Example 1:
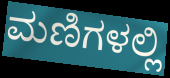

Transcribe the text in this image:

ಮಣಿಗಳಲ್ಲಿ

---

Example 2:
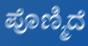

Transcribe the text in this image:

ಪೊಣ್ಮಿದೆ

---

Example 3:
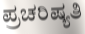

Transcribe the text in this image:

ಪ್ರಚರಿಷ್ಯತಿ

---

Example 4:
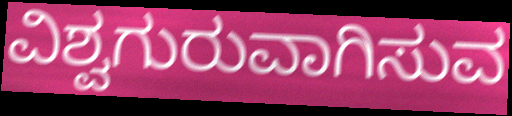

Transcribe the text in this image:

ವಿಶ್ವಗುರುವಾಗಿಸುವ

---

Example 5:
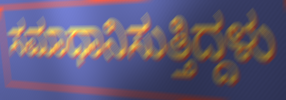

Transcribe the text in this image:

ಸಮಾಧಾನಿಸುತ್ತಿದ್ದಳು